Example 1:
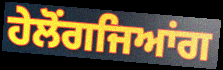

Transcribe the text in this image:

ਹੇਲੋਂਗਜਿਆਂਗ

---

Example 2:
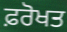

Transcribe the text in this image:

ਫ਼ਰੋਖਤ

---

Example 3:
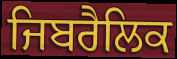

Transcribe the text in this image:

ਜਿਬਰੈਲਿਕ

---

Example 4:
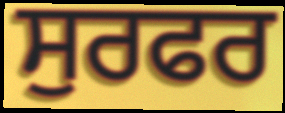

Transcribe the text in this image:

ਸੁਰਫਰ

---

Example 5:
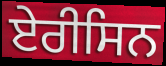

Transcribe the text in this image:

ਏਰੀਸਿਨ